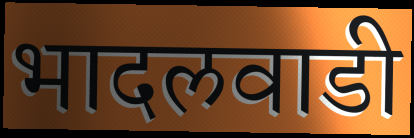
भादलवाडी